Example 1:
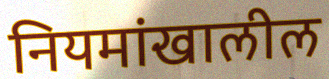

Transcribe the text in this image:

नियमांखालील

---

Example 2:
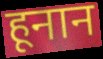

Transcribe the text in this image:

हूनान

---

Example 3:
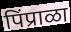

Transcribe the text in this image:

पिंप्राळा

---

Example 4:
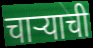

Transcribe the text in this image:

चाऱ्याची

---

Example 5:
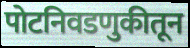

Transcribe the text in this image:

पोटनिवडणुकीतून